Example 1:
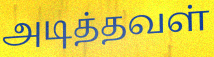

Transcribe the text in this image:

அடித்தவள்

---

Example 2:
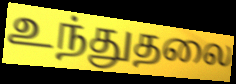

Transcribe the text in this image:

உந்துதலை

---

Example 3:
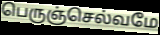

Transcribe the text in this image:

பெருஞ்செல்வமே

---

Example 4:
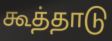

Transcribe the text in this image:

கூத்தாடு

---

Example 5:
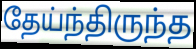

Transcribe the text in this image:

தேய்ந்திருந்த